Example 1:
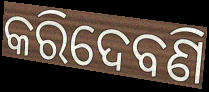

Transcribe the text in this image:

କରିଦେବଣି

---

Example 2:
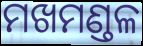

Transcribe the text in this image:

ମଖମଣ୍ଡଳ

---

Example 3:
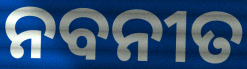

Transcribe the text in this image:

ନବନୀତ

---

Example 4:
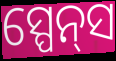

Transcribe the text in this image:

ସ୍ପେନ୍‌ସ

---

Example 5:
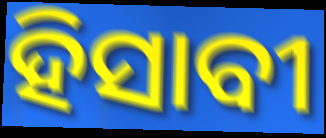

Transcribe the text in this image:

ହିସାବୀ